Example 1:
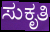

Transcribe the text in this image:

ಸುಕೃತಿ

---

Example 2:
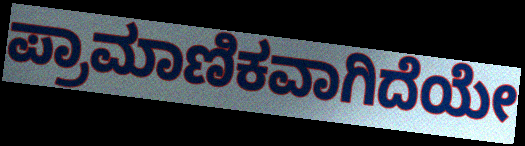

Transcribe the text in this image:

ಪ್ರಾಮಾಣಿಕವಾಗಿದೆಯೇ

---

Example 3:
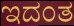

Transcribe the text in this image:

ಇದಂತ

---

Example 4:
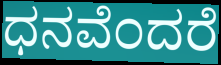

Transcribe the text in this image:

ಧನವೆಂದರೆ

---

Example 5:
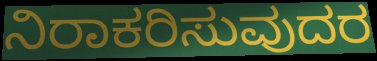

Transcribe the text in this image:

ನಿರಾಕರಿಸುವುದರ